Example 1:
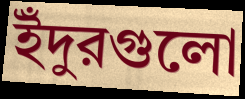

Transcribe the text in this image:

ইঁদুরগুলো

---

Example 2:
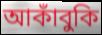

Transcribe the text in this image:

আকাঁবুকি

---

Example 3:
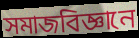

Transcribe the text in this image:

সমাজবিজ্ঞানে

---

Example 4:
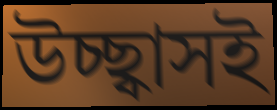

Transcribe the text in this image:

উচ্ছ্বাসই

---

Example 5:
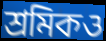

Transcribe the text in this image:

শ্রমিকও